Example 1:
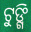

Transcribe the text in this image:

ଟୁଙ୍ଗି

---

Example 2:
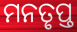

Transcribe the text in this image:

ମନତୃପ୍ତ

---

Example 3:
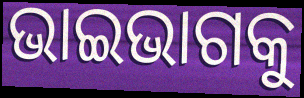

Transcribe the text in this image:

ଭାଇଭାଗକୁ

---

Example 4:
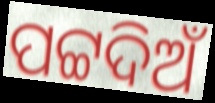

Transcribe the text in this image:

ପଟ୍ଟଦିଅଁ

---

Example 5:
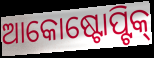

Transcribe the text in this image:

ଆକୋଷ୍ଟୋପ୍ଟିକ୍